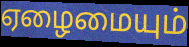
ஏழைமையும்